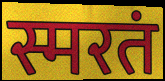
स्मरतं